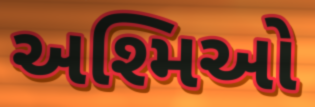
અશ્મિઓ